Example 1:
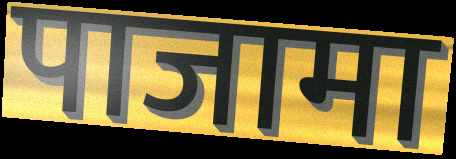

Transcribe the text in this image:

पाजामा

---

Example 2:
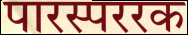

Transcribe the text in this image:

पारस्पररक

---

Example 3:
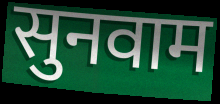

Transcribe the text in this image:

सुनवाम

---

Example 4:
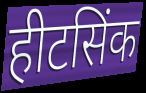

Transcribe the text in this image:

हीटसिंक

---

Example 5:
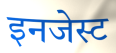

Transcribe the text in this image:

इनजेस्ट